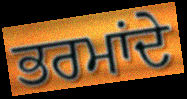
ਭਰਮਾਂਦੇ